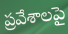
ప్రవేశాలపై